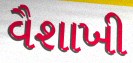
વૈશાખી